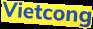
Vietcong